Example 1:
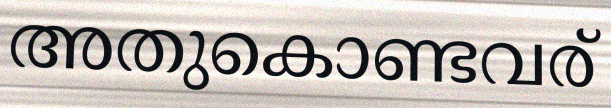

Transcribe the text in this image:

അതുകൊണ്ടവര്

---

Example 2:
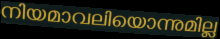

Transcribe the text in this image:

നിയമാവലിയൊന്നുമില്ല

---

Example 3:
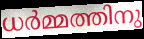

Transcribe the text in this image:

ധർമ്മത്തിനു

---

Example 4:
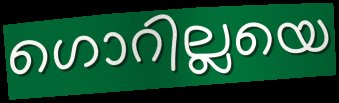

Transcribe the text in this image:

ഗൊറില്ലയെ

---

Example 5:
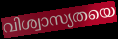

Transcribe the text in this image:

വിശ്വാസ്യതയെ